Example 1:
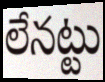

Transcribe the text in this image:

లేనట్టు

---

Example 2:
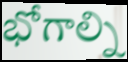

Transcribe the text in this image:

భోగాల్ని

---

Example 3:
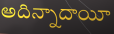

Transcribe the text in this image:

అదిన్నాదాయీ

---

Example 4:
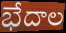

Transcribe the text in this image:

భేదాల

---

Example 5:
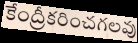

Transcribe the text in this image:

కేంద్రీకరించగలవు